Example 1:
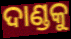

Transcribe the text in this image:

ଦାଣ୍ଡକୁ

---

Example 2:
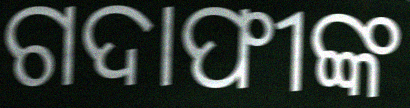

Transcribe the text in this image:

ଗଦାଫୀଙ୍କ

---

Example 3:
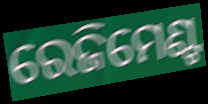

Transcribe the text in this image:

ରେଜିମେଣ୍ଟ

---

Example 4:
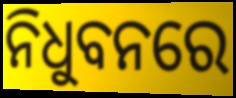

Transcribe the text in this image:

ନିଧୁବନରେ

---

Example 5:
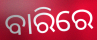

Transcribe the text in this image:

ବାରିରେ